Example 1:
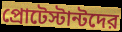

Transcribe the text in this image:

প্রোটেস্টান্টদের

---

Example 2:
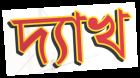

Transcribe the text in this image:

দ্যাখ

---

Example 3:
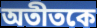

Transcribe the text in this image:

অতীতকে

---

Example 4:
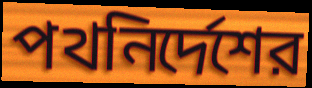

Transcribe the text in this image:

পথনির্দেশের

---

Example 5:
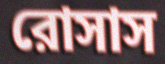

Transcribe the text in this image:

রোসাস